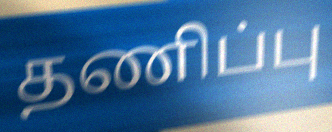
தணிப்பு